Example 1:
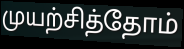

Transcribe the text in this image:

முயற்சித்தோம்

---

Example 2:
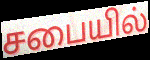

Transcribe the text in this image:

சபையில்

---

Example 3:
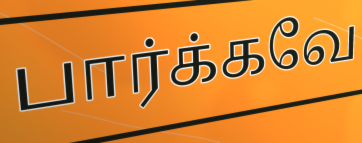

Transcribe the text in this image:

பார்க்கவே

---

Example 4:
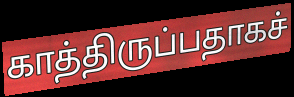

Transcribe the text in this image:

காத்திருப்பதாகச்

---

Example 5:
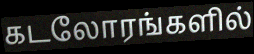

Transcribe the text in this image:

கடலோரங்களில்